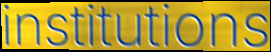
institutions